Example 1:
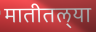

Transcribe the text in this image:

मातीतल्या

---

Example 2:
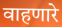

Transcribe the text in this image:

वाहणारे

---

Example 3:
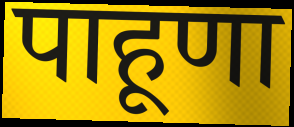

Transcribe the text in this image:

पाहूणा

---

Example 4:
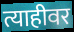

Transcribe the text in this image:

त्याहीवर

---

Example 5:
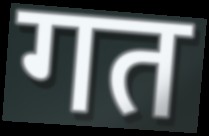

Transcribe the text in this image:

गत